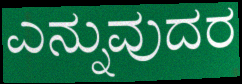
ಎನ್ನುವುದರ